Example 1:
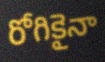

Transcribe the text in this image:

రోగికైనా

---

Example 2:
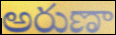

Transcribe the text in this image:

అరుణా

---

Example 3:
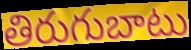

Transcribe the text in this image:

తిరుగుబాటు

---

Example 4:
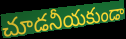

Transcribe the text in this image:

చూడనీయకుండా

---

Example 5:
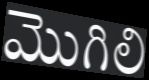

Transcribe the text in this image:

మొగిలి